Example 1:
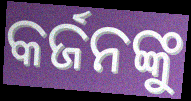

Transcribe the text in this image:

କର୍ଜନଙ୍କୁ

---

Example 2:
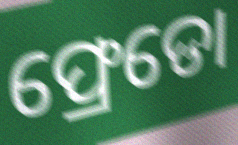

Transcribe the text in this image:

ଫ୍ରେଡୋ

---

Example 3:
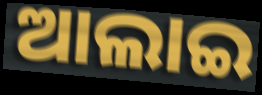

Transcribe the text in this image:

ଆଲାଇ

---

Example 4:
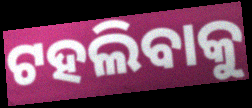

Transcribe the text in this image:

ଟହଲିବାକୁ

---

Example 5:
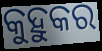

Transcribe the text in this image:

କୁହୁକର